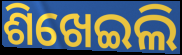
ଶିଖେଇଲି